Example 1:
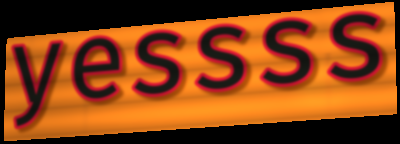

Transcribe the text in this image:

yessss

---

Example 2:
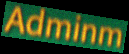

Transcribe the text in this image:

Adminm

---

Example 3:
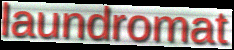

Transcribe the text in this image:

laundromat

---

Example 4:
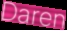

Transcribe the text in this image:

Daren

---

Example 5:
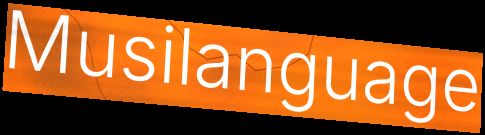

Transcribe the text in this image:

Musilanguage